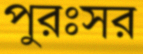
পুরঃসর